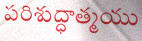
పరిశుద్ధాత్మయు